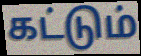
கட்டும்